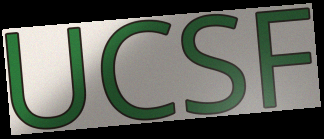
UCSF